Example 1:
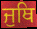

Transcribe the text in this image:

ਜੁਥਿ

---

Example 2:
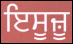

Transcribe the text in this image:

ਇਸੂਜ਼ੂ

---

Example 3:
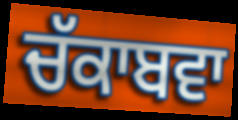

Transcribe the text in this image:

ਚੱਕਾਬਵਾ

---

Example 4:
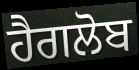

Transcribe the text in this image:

ਹੈਗਲੋਬ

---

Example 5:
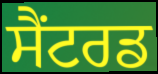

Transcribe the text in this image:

ਸੈਂਟਰਡ